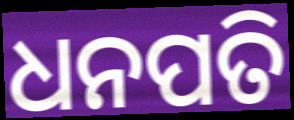
ଧନପତି